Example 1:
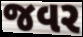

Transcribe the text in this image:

જવર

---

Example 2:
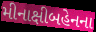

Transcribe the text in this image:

મીનાક્ષીબહેનના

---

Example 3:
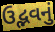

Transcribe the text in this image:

ઉદ્ભવનું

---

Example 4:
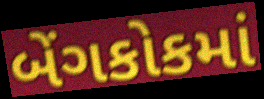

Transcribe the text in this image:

બેંગકોકમાં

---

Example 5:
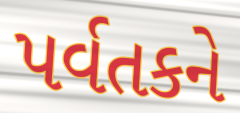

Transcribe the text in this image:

પર્વતકને